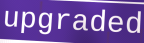
upgraded